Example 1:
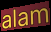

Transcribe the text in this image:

alam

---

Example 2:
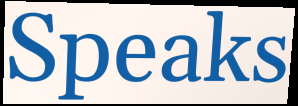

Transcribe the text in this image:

Speaks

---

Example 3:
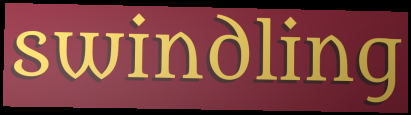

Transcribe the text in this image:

swindling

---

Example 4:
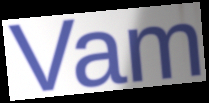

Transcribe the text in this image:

Vam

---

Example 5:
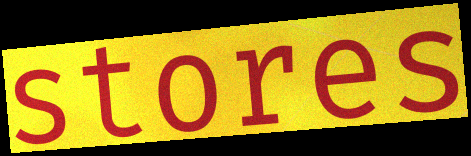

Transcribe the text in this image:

stores